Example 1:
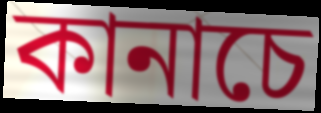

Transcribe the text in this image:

কানাচে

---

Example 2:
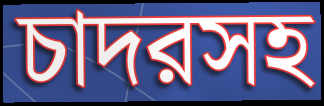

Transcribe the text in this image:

চাদরসহ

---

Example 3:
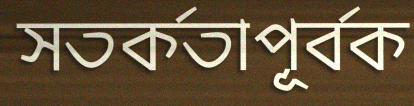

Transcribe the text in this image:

সতর্কতাপূর্বক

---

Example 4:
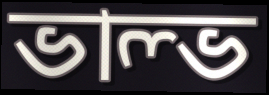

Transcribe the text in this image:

ভাল্ভ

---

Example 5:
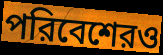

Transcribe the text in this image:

পরিবেশেরও